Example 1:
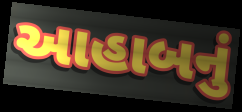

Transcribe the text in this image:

આહાબનું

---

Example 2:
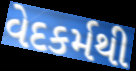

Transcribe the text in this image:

વેદકર્મથી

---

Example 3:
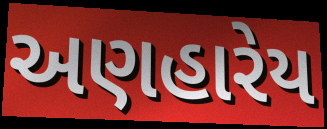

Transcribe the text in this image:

અણહારેય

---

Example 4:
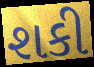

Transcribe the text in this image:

શકી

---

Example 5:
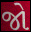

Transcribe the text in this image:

જો